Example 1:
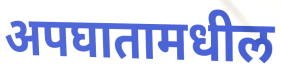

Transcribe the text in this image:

अपघातामधील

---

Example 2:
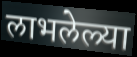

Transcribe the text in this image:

लाभलेल्या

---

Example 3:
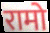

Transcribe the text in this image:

रामो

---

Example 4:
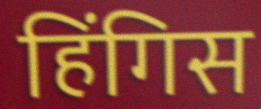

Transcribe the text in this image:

हिंगिस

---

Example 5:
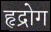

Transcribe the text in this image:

हृद्रोग